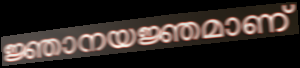
ജ്ഞാനയജ്ഞമാണ്